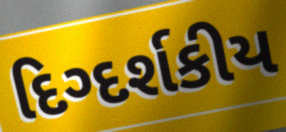
દિગ્દર્શકીય